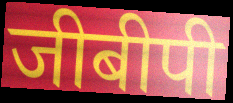
जीबीपी